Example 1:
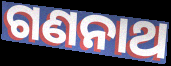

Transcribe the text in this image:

ଗଣନାଥ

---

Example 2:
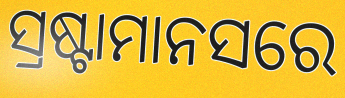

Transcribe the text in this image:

ସ୍ରଷ୍ଟାମାନସରେ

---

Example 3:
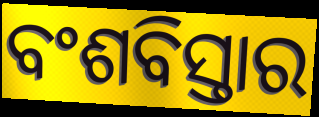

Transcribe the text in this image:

ବଂଶବିସ୍ତାର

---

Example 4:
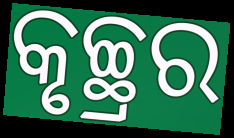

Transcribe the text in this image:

କୃଚ୍ଛ୍ରର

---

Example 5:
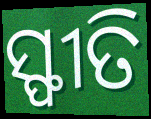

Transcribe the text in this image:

ସ୍ଫୀତି